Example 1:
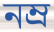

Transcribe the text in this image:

নম্ৰ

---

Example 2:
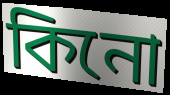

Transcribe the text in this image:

কিনো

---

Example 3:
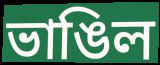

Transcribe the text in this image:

ভাঙিল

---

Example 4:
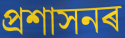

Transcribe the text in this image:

প্ৰশাসনৰ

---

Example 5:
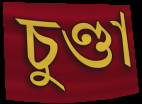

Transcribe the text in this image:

চুণ্ডা